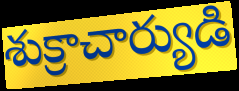
శుక్రాచార్యుడి